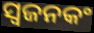
ସ୍ଵଜନକଂ